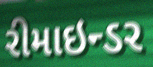
રીમાઇન્ડર